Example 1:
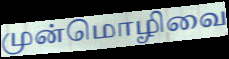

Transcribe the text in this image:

முன்மொழிவை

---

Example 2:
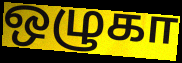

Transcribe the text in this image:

ஒழுகா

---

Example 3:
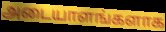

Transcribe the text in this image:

அடையாளங்களாக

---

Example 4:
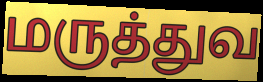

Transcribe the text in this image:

மருத்துவ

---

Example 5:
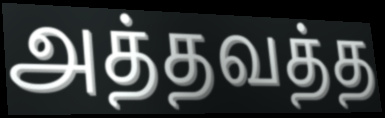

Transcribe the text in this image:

அத்தவத்த